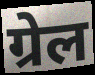
ग्रेल